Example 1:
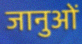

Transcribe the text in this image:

जानुओं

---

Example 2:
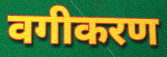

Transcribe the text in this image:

वगीकरण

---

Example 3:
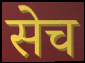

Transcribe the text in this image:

सेच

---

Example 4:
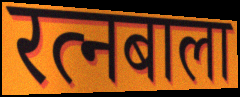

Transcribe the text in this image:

रत्नबाला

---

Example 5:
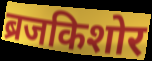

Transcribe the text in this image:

ब्रजकिशोर